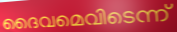
ദൈവമെവിടെന്ന്